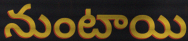
నుంటాయి